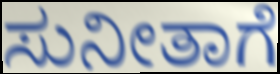
ಸುನೀತಾಗೆ